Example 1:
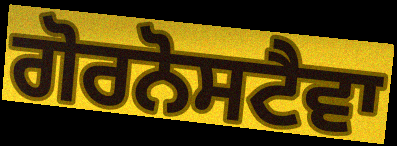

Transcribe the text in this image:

ਗੋਰਨੋਸਟੈਵਾ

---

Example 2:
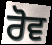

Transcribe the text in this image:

ਰੋਵ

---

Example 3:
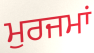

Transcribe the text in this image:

ਮੁਰਜਮਾਂ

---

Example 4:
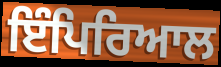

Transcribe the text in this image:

ਇੰਪਿਰਿਆਲ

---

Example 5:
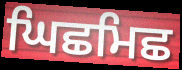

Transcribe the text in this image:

ਘਿਛਮਿਛ